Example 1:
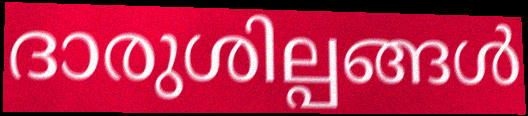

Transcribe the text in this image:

ദാരുശില്പങ്ങൾ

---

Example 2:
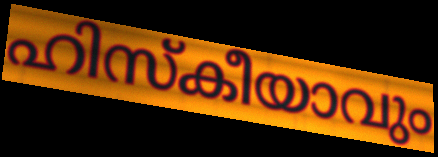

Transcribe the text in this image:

ഹിസ്കീയാവും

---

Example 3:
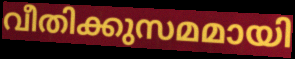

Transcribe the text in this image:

വീതിക്കുസമമായി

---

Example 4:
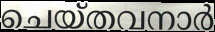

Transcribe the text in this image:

ചെയ്തവനാർ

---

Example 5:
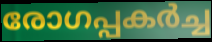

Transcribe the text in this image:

രോഗപ്പകർച്ച